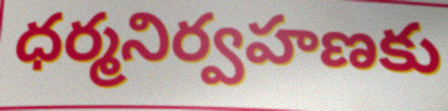
ధర్మనిర్వహణకు